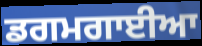
ਡਗਮਗਾਈਆ